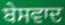
ਬੇਸਵਾਦ